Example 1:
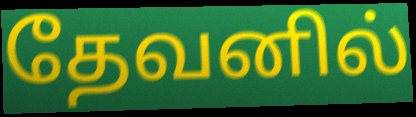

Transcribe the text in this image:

தேவனில்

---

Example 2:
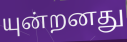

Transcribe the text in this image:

யுன்றனது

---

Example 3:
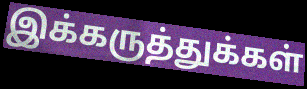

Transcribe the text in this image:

இக்கருத்துக்கள்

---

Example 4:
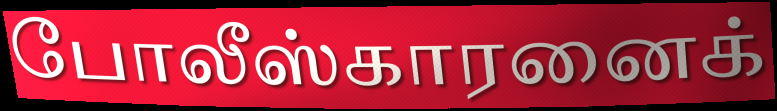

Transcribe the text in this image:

போலீஸ்காரனைக்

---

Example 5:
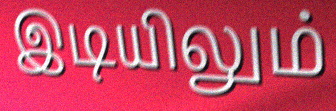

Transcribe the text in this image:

இடியிலும்